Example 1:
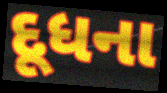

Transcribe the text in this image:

દૂધના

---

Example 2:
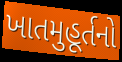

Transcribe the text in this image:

ખાતમુહૂર્તનો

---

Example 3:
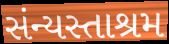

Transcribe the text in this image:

સંન્યસ્તાશ્રમ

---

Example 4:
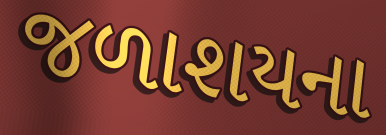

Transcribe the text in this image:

જળાશયના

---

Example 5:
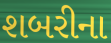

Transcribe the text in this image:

શબરીના